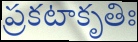
ప్రకటాకృతిః